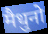
मैथुनो